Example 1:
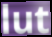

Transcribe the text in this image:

lut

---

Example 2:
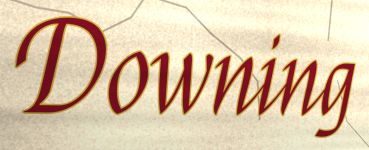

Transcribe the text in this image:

Downing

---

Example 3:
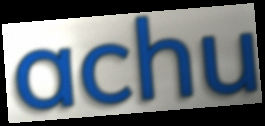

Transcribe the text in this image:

achu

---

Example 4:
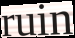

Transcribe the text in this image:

ruin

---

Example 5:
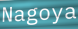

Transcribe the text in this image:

Nagoya